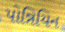
પોન્નિયિન